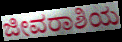
ಜೀವರಾಶಿಯ